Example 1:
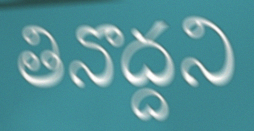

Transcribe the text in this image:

తినొద్దని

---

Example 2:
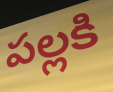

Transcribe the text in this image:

పల్లకి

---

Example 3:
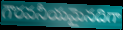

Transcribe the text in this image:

గౌరవనీయమైనదిగా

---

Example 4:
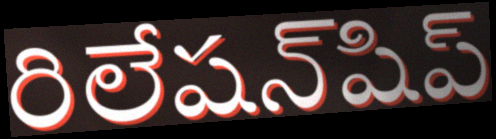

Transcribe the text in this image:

రిలేషన్‌షిప్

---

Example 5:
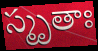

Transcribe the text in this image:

స్మృతాః